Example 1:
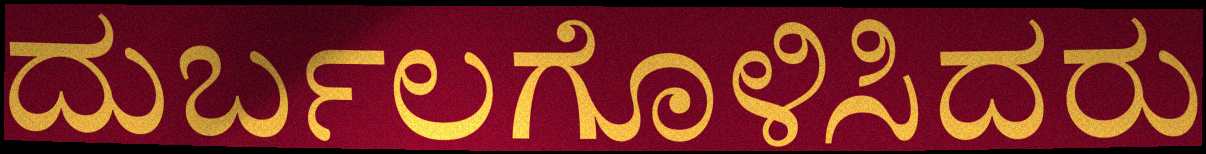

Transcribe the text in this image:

ದುರ್ಬಲಗೊಳಿಸಿದರು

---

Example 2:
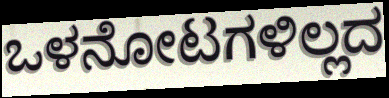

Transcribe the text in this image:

ಒಳನೋಟಗಳಿಲ್ಲದ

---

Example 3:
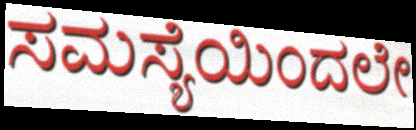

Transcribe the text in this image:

ಸಮಸ್ಯೆಯಿಂದಲೇ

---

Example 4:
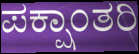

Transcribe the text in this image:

ಪಕ್ಷಾಂತರಿ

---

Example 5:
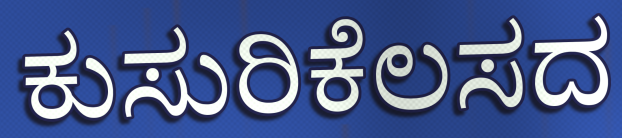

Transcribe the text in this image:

ಕುಸುರಿಕೆಲಸದ